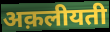
अक़लीयती